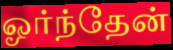
ஓர்ந்தேன்